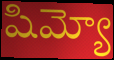
షిమ్యో